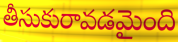
తీసుకురావడమైంది